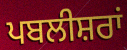
ਪਬਲੀਸ਼ਰਾਂ